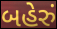
બહેરું